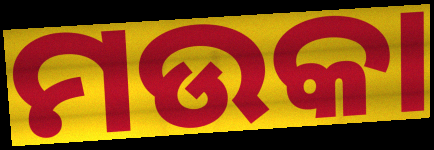
ମଉକା